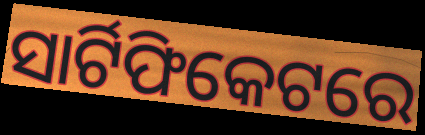
ସାର୍ଟିଫିକେଟରେ